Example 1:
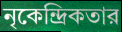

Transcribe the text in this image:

নৃকেন্দ্রিকতার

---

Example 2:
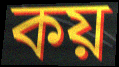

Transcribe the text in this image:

কয়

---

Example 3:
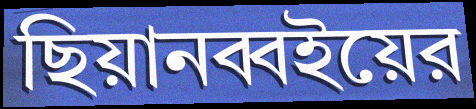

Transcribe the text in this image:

ছিয়ানব্বইয়ের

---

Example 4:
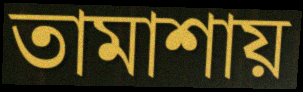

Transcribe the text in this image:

তামাশায়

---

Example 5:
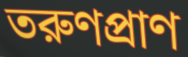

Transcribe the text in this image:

তরুণপ্রাণ